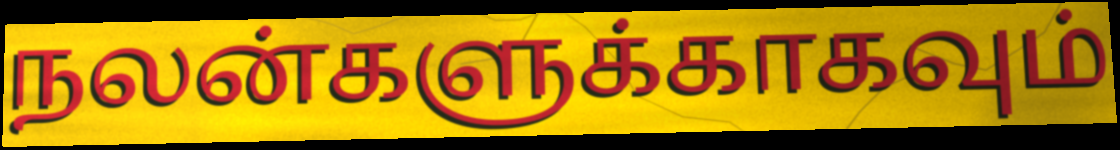
நலன்களுக்காகவும்